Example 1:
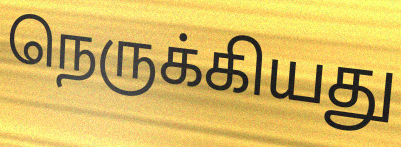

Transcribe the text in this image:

நெருக்கியது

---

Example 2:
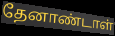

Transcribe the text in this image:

தேனாண்டாள்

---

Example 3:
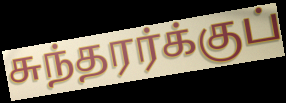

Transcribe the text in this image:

சுந்தரர்க்குப்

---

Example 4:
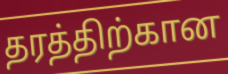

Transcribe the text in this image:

தரத்திற்கான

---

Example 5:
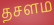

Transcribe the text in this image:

தசளம